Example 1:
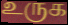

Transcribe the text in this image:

உருக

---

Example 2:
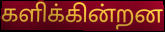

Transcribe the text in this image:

களிக்கின்றன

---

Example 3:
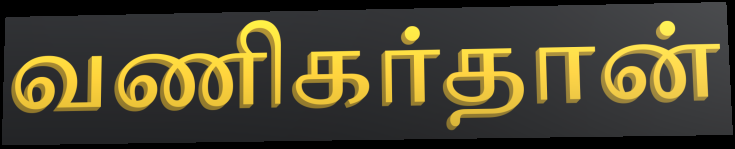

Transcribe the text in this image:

வணிகர்தான்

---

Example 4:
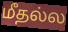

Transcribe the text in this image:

மீதல்ல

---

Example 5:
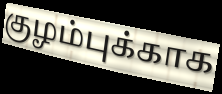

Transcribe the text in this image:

குழம்புக்காக